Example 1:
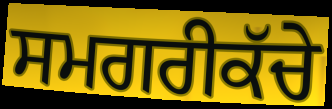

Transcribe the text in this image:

ਸਮਗਰੀਕੱਚੇ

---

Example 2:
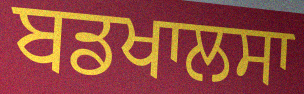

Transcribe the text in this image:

ਬਡਖਾਲਸਾ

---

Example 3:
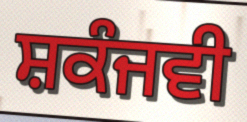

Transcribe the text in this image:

ਸ਼ਕੰਜਵੀ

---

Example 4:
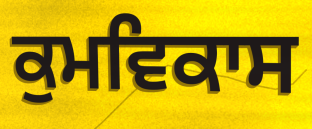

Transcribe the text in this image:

ਕੁਮਵਿਕਾਸ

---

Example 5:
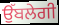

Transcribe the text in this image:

ਉੱਬਲੇਗੀ